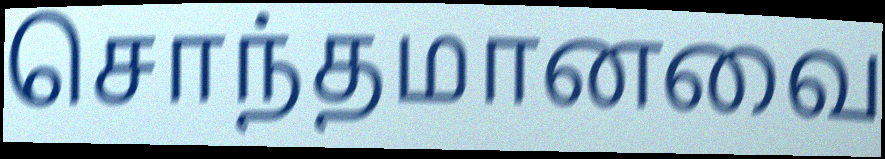
சொந்தமானவை